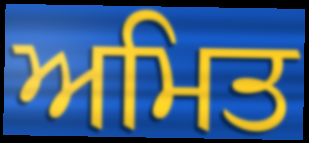
ਅਮਿਤ